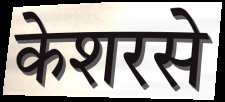
केशरसे